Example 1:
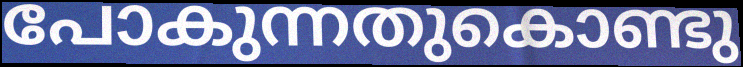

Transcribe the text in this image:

പോകുന്നതുകൊണ്ടു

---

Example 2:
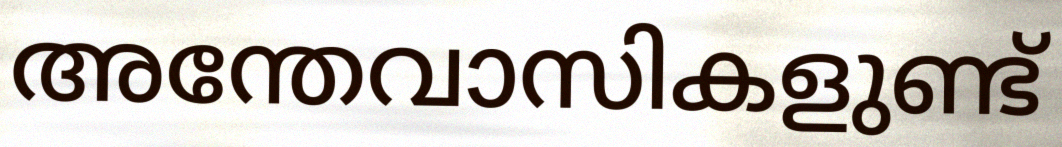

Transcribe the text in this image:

അന്തേവാസികളുണ്ട്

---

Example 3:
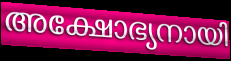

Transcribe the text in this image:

അക്ഷോഭ്യനായി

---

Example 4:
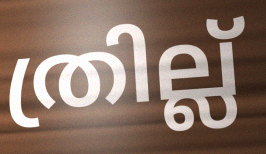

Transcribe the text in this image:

ത്രില്ല്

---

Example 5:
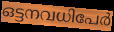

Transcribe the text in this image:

ഒട്ടനവധിപേർ